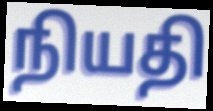
நியதி